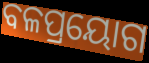
ବଳପ୍ରୟୋଗ